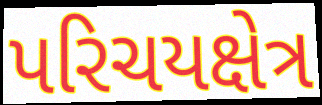
પરિચયક્ષેત્ર